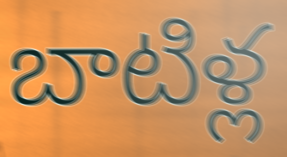
బాటిళ్ల